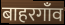
बाहरगाँव